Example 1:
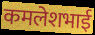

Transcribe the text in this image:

कमलेशभाई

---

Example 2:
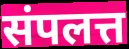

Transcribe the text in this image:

संपलत्त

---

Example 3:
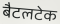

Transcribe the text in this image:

बैटलटेक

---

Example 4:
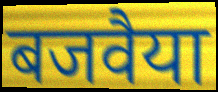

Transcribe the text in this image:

बजवैया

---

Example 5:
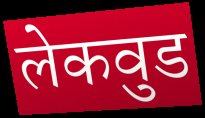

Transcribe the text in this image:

लेकवुड